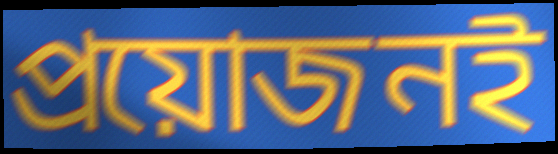
প্রয়োজনই